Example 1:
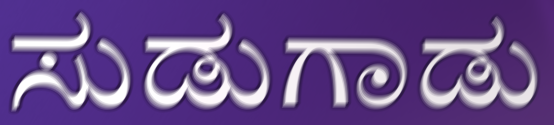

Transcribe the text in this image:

ಸುಡುಗಾಡು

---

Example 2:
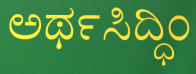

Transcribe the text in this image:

ಅರ್ಥಸಿದ್ಧಿಂ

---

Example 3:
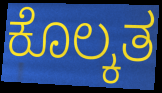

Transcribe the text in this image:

ಕೊಲ್ಕತ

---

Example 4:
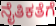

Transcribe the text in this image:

ನೈತಿಕತೆಗೆ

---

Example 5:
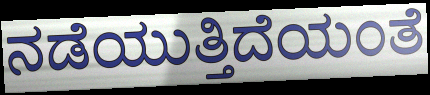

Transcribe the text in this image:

ನಡೆಯುತ್ತಿದೆಯಂತೆ